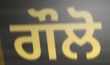
ਗੌਲੋ